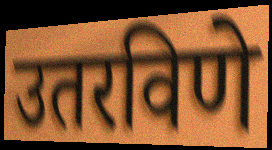
उतरविणे